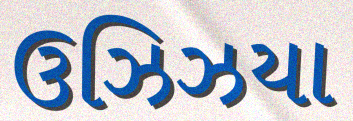
ઉઝિઝયા